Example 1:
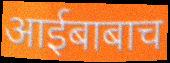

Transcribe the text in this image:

आईबाबाच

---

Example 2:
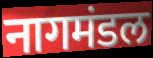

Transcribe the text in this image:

नागमंडल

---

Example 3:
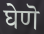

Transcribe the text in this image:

घेणॆ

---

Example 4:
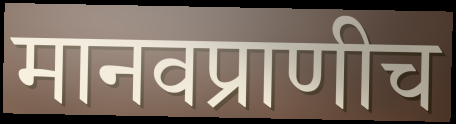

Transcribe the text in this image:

मानवप्राणीच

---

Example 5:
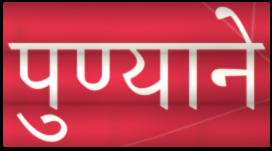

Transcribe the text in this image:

पुण्याने